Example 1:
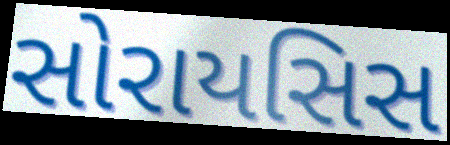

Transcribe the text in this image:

સોરાયસિસ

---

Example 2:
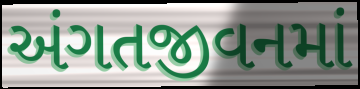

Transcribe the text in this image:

અંગતજીવનમાં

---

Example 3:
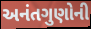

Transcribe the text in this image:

અનંતગુણોની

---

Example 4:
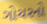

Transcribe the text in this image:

ગોચરનો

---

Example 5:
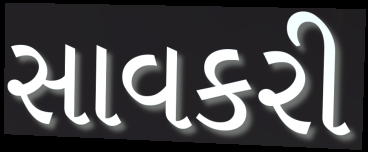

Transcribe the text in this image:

સાવકરી